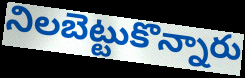
నిలబెట్టుకొన్నారు